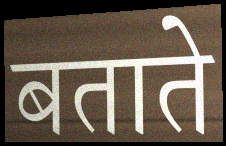
बताते